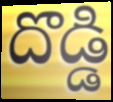
దొడ్డి